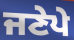
ਜਣੇਪੇ